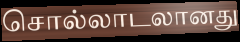
சொல்லாடலானது